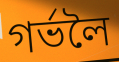
গৰ্ভলৈ